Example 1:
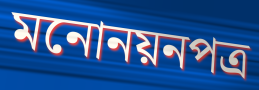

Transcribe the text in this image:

মনোনয়নপত্র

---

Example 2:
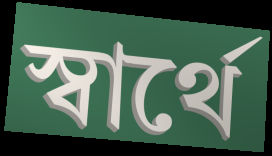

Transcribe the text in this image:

স্বার্থে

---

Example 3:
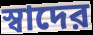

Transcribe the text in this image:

স্বাদের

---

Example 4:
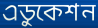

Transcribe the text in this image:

এডুকেশন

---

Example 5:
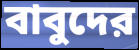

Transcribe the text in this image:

বাবুদের